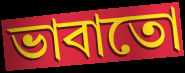
ভাবাতো